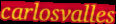
carlosvalles